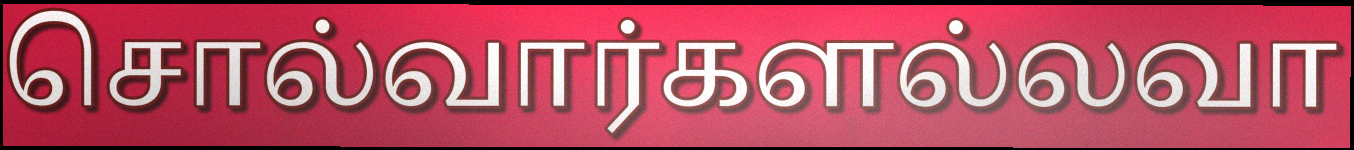
சொல்வார்களல்லவா